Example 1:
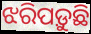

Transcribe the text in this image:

ଝରିପଡ଼ୁଛି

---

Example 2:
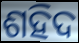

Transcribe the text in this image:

ଶହିଦ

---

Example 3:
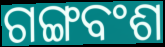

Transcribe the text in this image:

ଗଙ୍ଗବଂଶ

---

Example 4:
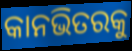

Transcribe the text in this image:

କାନଭିତରକୁ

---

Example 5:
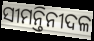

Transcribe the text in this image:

ସୀମନ୍ତିନୀଦଳ